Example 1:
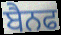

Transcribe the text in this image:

ਬੈਨਫ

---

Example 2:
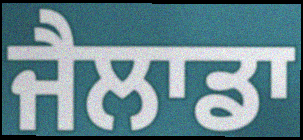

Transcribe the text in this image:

ਜੈਲਾਡਾ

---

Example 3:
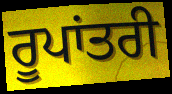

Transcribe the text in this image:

ਰੂਪਾਂਤਰੀ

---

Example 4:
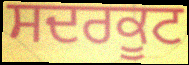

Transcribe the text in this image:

ਸਦਰਕੂਟ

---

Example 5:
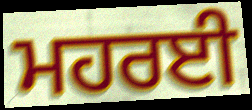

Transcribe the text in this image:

ਮਹਰਈ